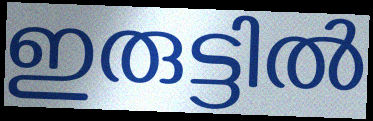
ഇരുട്ടിൽ